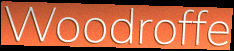
Woodroffe